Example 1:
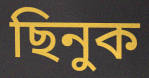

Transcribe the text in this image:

ছিনুক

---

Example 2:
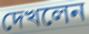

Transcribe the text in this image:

দেখলেন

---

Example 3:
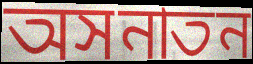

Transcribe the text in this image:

অসনাতন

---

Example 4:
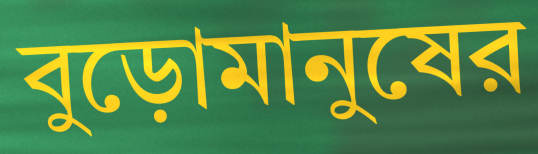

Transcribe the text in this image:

বুড়োমানুষের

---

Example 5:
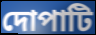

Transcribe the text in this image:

দোপাটি